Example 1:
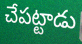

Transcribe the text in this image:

చేపట్టాడు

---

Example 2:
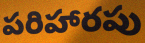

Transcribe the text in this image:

పరిహారపు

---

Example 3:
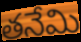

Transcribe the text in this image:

తనేమి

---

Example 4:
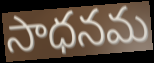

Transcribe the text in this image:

సాధనమ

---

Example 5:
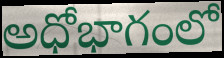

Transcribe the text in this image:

అధోభాగంలో